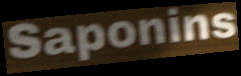
Saponins